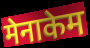
मेनाकेम